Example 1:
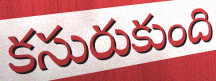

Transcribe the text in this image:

కసురుకుంది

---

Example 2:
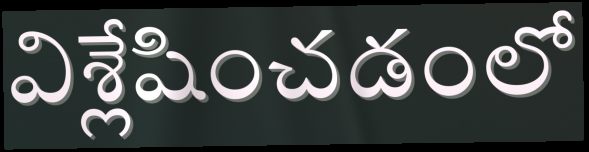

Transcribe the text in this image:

విశ్లేషించడంలో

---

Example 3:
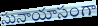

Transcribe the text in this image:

సునాయాసంగా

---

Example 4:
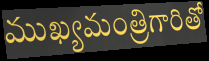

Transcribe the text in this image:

ముఖ్యమంత్రిగారితో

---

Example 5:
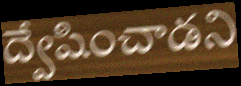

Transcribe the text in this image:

ద్వేషించాడని